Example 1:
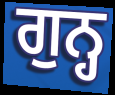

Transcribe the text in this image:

ਗੁਨ੍ਹ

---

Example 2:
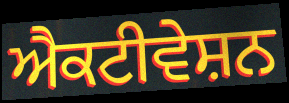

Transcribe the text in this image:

ਐਕਟੀਵੇਸ਼ਨ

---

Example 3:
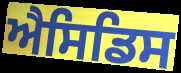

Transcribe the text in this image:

ਐਸਿਡਿਸ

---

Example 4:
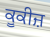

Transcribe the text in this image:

ਕੂਕੀਜ਼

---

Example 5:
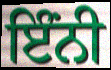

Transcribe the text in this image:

ਇੰਂਨੀ